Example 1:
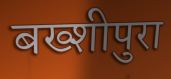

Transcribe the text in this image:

बख्शीपुरा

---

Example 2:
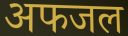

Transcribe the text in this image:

अफजल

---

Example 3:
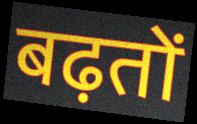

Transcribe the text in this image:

बढ़तों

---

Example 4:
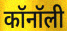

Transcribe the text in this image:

कॉनॉली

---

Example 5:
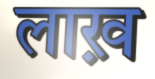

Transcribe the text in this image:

लाख़